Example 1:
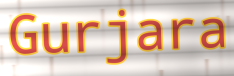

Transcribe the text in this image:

Gurjara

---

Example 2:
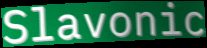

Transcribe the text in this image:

Slavonic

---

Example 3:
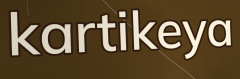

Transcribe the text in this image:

kartikeya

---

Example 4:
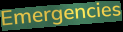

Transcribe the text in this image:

Emergencies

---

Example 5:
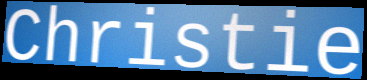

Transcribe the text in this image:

Christie